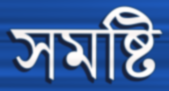
সমষ্টি